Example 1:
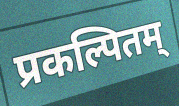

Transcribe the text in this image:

प्रकल्पितम्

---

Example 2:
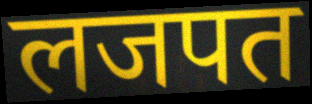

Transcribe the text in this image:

लजपत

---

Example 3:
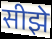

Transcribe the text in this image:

सीझे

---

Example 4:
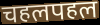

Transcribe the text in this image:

चहलपहल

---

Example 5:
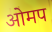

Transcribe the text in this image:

ओमप